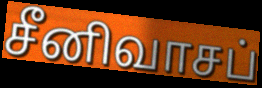
சீனிவாசப்